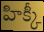
హిక్కీ